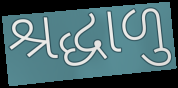
શ્રદ્ધાળુ